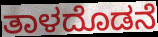
ತಾಳದೊಡನೆ